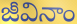
జీవినాం